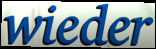
wieder